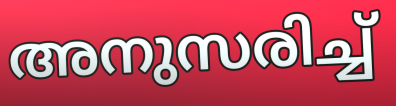
അനുസരിച്ച്